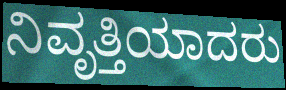
ನಿವೃತ್ತಿಯಾದರು